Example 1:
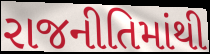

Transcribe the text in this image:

રાજનીતિમાંથી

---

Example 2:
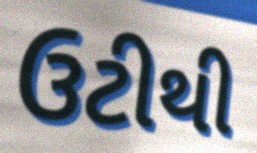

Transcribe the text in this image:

ઉટીથી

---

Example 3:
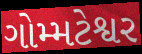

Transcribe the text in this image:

ગોમ્મટેશ્વર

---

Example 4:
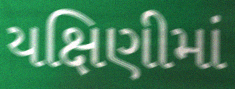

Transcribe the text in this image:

યક્ષિણીમાં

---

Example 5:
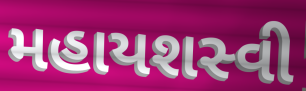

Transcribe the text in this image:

મહાયશસ્વી